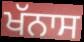
ਖੱਨਾਸ